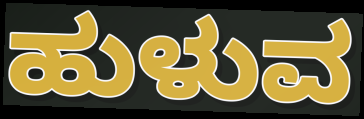
ಹುಳುವ